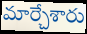
మార్చేశారు